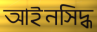
আইনসিদ্ধ